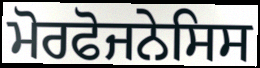
ਮੋਰਫੋਜਨੇਸਿਸ